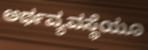
ಅರ್ಥವ್ಯವಸ್ಥೆಯೂ